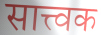
सात्त्वक